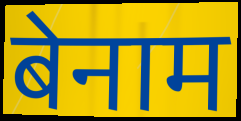
बेनाम